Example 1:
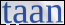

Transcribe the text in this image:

taan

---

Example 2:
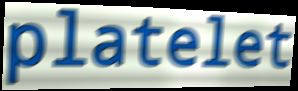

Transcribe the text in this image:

platelet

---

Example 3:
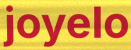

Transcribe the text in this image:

joyelo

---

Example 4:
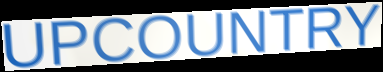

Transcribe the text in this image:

UPCOUNTRY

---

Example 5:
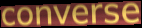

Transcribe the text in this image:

converse